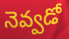
నెవ్వడో